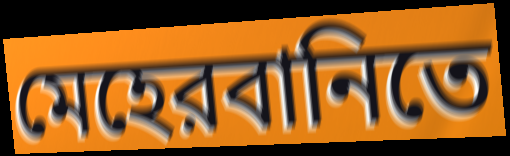
মেহেরবানিতে